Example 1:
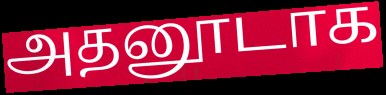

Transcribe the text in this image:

அதனூடாக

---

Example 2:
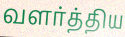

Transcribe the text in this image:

வளர்த்திய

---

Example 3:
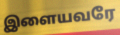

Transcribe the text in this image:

இளையவரே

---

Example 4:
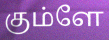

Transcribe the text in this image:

கும்ளே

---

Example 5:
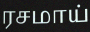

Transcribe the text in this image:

ரசமாய்